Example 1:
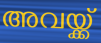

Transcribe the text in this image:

അവയ്ക്ക്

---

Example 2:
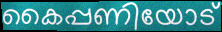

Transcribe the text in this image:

കൈപ്പണിയോട്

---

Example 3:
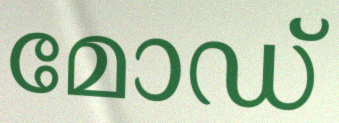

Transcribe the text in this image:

മോഡ്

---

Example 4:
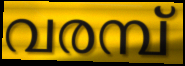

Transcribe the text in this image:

വരമ്പ്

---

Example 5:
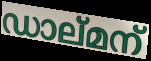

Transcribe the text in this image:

ഡാല്മന്